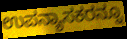
ಉಪನ್ಯಾಸಕರನ್ನೂ